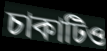
চাকাটিও